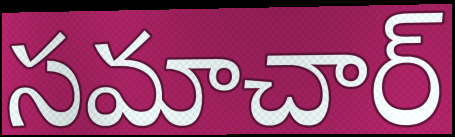
సమాచార్